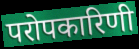
परोपकारिणी